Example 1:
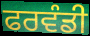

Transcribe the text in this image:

ਫਰਵੰਡੀ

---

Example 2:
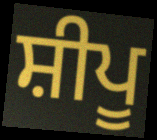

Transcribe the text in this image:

ਸ਼ੀਪੂ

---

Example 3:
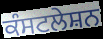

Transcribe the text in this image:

ਕੰਸਟਲੇਸ਼ਨ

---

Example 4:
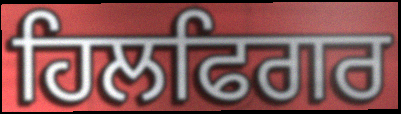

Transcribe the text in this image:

ਹਿਲਫਿਗਰ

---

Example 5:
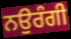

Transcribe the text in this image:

ਨਉਰੰਗੀ